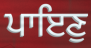
ਪਾਇਣੁ